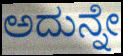
ಅದುನ್ನೇ